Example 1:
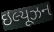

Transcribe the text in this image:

ઇલ્યૂઝન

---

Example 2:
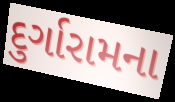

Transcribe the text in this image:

દુર્ગારામના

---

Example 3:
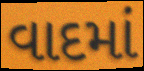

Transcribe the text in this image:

વાદમાં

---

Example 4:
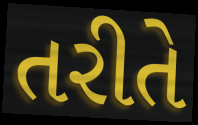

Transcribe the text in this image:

તરીતે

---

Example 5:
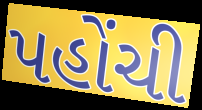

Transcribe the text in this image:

પહોંચી